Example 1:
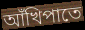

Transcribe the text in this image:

আঁখিপাতে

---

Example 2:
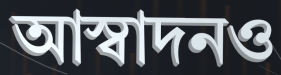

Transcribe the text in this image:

আস্বাদনও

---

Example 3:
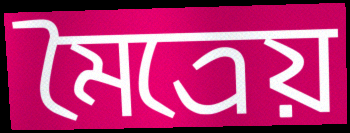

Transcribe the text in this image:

মৈত্রেয়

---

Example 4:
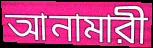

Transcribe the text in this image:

আনামারী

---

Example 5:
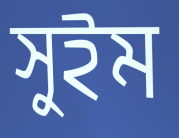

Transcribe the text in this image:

সুইম